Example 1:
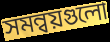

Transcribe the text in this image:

সমন্বয়গুলো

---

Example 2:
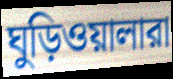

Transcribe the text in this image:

ঘুড়িওয়ালারা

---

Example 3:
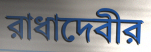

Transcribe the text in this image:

রাধাদেবীর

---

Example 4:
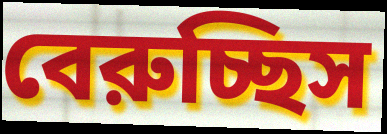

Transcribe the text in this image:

বেরুচ্ছিস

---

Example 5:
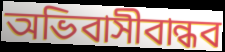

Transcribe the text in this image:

অভিবাসীবান্ধব